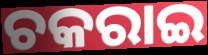
ଚକରାଇ